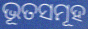
ଭୂତସମୂହ